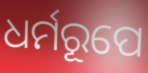
ଧର୍ମରୂପେ